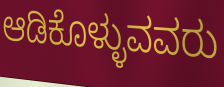
ಆಡಿಕೊಳ್ಳುವವರು